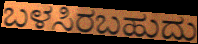
ಬಳಸಿರಬಹುದು